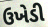
ઉખેડી